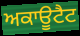
ਅਕਾਊਟੈਟ